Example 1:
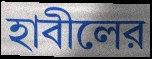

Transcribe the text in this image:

হাবীলের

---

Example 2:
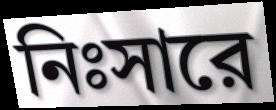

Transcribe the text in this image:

নিঃসারে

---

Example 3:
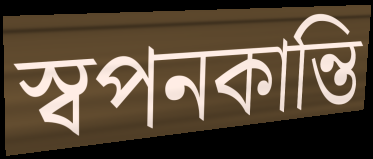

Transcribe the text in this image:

স্বপনকান্তি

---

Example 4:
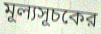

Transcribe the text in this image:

মূল্যসূচকের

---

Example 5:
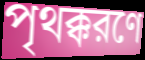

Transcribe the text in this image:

পৃথক্করণে